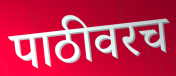
पाठीवरच